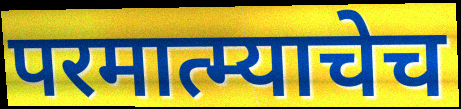
परमात्म्याचेच